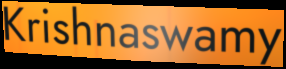
Krishnaswamy